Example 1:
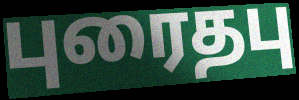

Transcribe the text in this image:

புரைதபு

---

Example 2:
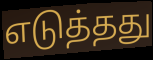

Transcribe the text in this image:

எடுத்தது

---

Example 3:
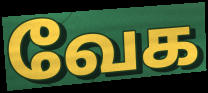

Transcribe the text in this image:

வேக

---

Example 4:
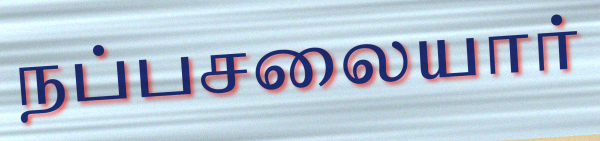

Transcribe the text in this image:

நப்பசலையார்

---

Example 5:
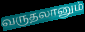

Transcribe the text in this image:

வருதலானும்